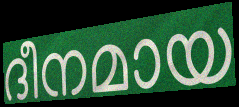
ദീനമായ